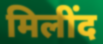
मिलींद